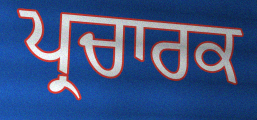
ਪ੍ਰਚਾਰਕ